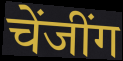
चेंजींग